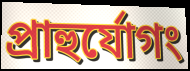
প্রাহুর্যোগং